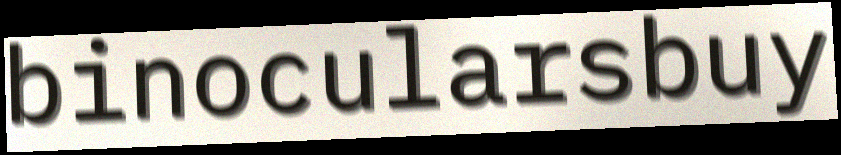
binocularsbuy